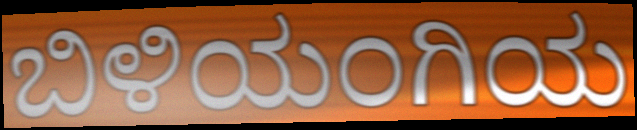
ಬಿಳಿಯಂಗಿಯ